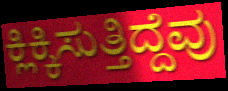
ಕ್ಲಿಕ್ಕಿಸುತ್ತಿದ್ದೆವು